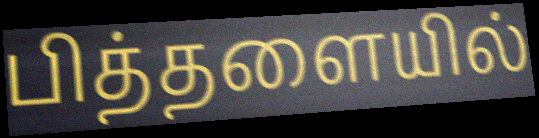
பித்தளையில்